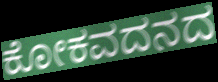
ಕೋಕವದನದ